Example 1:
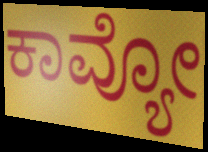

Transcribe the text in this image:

ಕಾವ್ಯೋ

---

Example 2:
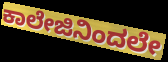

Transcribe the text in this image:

ಕಾಲೇಜಿನಿಂದಲೇ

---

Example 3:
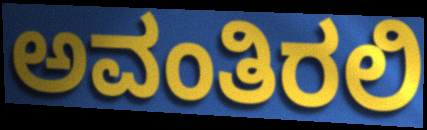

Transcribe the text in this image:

ಅವಂತಿರಲಿ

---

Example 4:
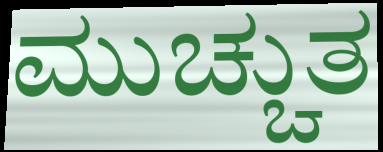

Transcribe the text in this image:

ಮುಚ್ಚುತ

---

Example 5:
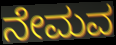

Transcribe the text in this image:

ನೇಮವ